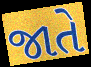
જાતે